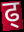
ढ्